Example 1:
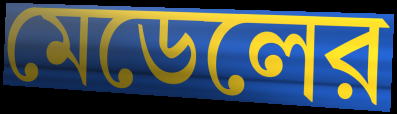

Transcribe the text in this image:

মেডেলের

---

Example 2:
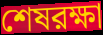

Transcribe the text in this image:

শেষরক্ষা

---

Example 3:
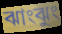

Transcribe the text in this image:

ঝাংঝুং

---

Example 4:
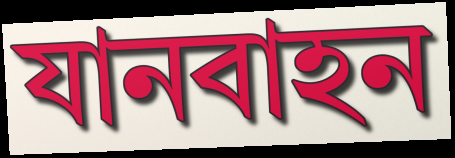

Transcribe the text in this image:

যানবাহন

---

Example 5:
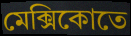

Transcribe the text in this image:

মেক্সিকোতে